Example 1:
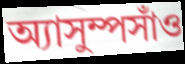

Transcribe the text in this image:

অ্যাসুম্পসাঁও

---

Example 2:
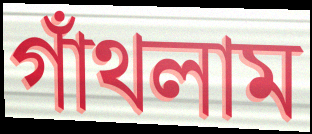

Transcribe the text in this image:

গাঁথলাম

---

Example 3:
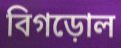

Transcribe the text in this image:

বিগড়োল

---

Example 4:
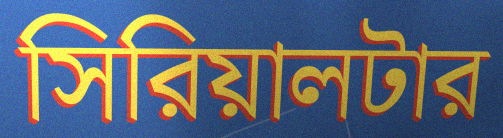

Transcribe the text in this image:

সিরিয়ালটার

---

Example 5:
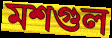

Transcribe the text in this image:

মশগুল